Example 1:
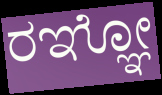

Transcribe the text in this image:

ರಞ್ಞೋ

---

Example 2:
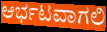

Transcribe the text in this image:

ಆರ್ಭಟವಾಗಲಿ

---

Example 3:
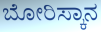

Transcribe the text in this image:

ಬೋರಿಸ್ಕಾನ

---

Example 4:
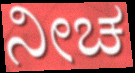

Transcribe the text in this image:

ನೀಚ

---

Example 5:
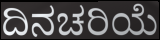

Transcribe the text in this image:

ದಿನಚರಿಯೆ